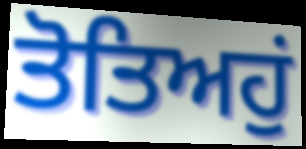
ਤੋਤਿਅਹੁਂ